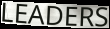
LEADERS